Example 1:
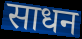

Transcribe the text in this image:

साधन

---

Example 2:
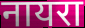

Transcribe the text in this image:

नायरा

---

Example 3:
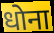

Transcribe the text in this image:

धोना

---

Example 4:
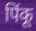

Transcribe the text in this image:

पिंकू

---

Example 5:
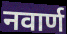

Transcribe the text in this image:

नवार्ण